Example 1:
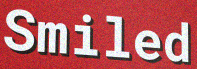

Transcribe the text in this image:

Smiled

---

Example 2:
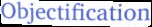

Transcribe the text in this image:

Objectification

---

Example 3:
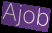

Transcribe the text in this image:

Ajob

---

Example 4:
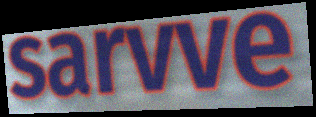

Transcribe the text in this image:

sarvve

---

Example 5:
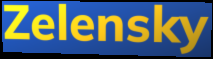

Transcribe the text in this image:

Zelensky